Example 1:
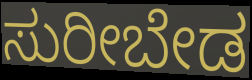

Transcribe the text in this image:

ಸುರೀಬೇಡ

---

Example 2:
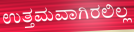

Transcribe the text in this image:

ಉತ್ತಮವಾಗಿರಲಿಲ್ಲ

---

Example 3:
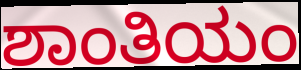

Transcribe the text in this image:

ಶಾಂತಿಯಂ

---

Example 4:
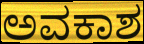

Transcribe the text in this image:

ಅವಕಾಶ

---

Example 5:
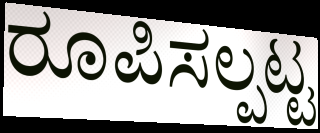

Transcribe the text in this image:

ರೂಪಿಸಲ್ಪಟ್ಟ